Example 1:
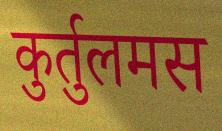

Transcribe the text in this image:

कुर्तुलमस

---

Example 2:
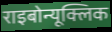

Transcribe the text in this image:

राइबोन्यूक्लिक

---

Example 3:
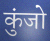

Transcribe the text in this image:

कुंजो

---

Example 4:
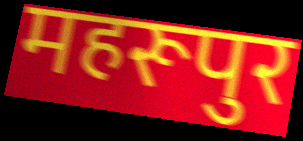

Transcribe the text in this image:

महरूपुर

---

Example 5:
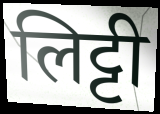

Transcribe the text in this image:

लिट्टी